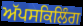
ਅੱਪਸਕਿਲਿੰਗ